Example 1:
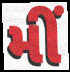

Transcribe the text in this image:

મીં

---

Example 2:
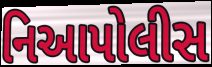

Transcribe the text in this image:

નિઆપોલીસ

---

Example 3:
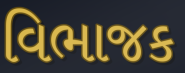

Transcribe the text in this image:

વિભાજક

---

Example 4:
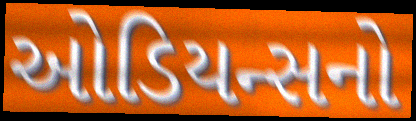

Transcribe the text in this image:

ઓડિયન્સનો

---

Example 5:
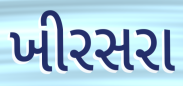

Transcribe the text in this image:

ખીરસરા